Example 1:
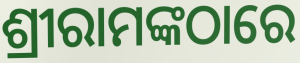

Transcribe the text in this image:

ଶ୍ରୀରାମଙ୍କଠାରେ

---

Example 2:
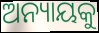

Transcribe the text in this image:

ଅନ୍ୟାୟକୁ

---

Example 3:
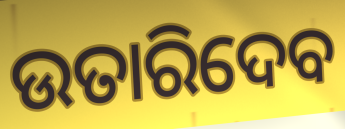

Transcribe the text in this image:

ଉତାରିଦେବ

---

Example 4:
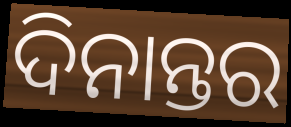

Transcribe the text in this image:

ଦିନାନ୍ତର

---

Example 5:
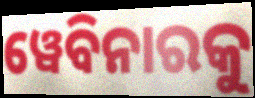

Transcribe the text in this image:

ୱେବିନାରକୁ